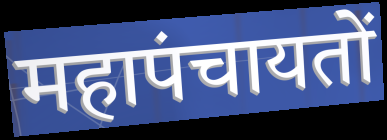
महापंचायतों